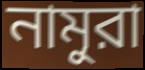
নামুরা